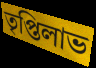
তৃপ্তিলাভ